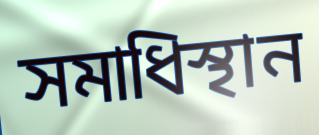
সমাধিস্থান